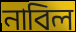
নাবিল